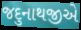
જદુનાથજીએ